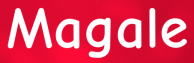
Magale